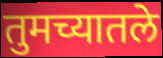
तुमच्यातले